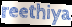
reethiya